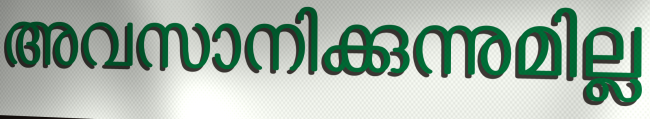
അവസാനിക്കുന്നുമില്ല